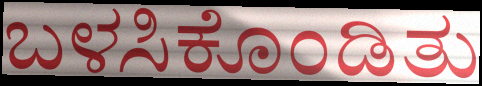
ಬಳಸಿಕೊಂಡಿತು